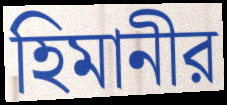
হিমানীর